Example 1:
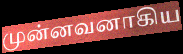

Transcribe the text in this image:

முன்னவனாகிய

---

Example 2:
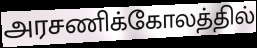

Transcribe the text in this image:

அரசணிக்கோலத்தில்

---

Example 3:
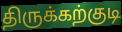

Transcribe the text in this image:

திருக்கற்குடி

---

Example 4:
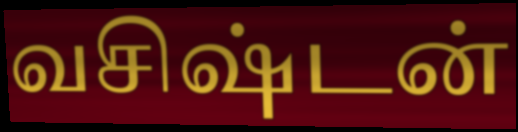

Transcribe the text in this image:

வசிஷ்டன்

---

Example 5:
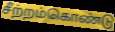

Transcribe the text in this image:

சீற்றம்கொண்டு